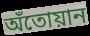
অঁতোয়ান